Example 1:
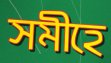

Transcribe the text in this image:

সমীহে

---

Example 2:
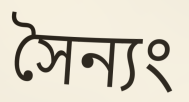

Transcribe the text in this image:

সৈন্যং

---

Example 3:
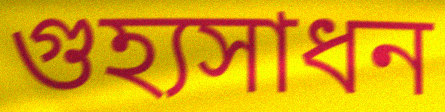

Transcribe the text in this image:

গুহ্যসাধন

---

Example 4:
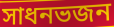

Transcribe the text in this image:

সাধনভজন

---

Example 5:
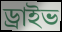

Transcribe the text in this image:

ড্রাইভ